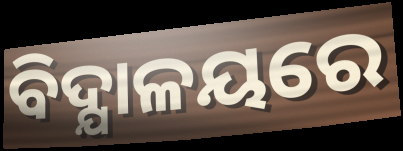
ବିଦ୍ଯାଳୟରେ